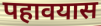
पहावयास